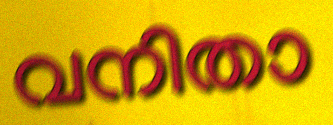
വനിതാ